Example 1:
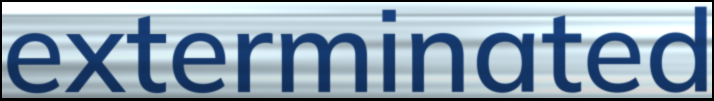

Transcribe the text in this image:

exterminated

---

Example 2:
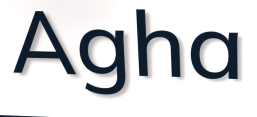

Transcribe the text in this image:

Agha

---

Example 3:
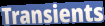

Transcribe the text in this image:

Transients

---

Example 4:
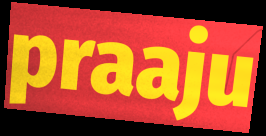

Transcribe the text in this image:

praaju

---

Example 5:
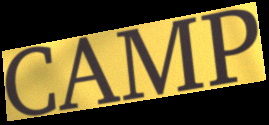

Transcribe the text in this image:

CAMP